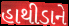
હાથીડાને